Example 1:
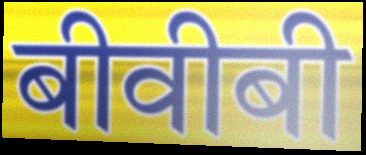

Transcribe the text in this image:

बीवीबी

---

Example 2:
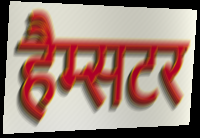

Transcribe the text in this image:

हैम्सटर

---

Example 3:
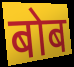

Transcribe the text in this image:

बोब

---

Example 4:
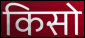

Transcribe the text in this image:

किसो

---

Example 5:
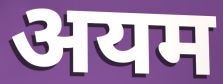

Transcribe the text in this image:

अयम